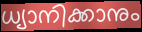
ധ്യാനിക്കാനും